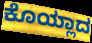
ಕೊಯ್ಲಾದ